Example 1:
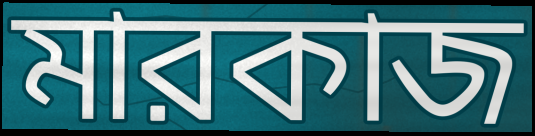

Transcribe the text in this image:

মারকাজ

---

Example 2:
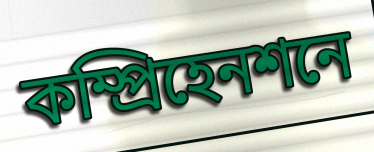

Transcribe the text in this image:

কম্প্রিহেনশনে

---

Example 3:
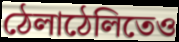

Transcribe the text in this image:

ঠেলাঠেলিতেও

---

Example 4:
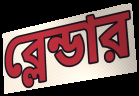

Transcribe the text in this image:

ব্লেন্ডার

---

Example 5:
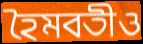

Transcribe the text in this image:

হৈমবতীও